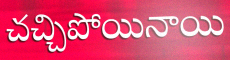
చచ్చిపోయినాయి